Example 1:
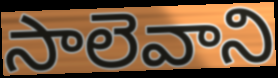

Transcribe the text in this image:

సాలెవాని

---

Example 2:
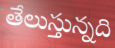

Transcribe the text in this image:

తేలుస్తున్నది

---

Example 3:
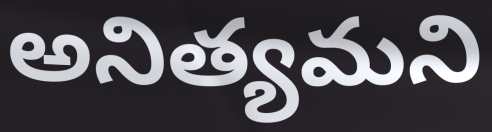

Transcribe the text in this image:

అనిత్యమని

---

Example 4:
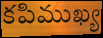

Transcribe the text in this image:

కపిముఖ్య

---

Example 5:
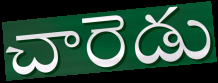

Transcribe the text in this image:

చారెడు